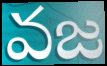
వజ